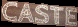
CASTE